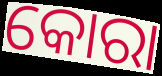
କୋରା